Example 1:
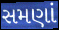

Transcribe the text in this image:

સમણાં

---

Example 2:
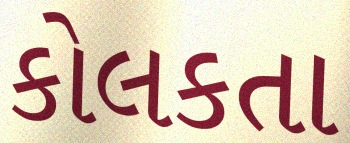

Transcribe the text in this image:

કોલકતા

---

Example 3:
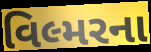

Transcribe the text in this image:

વિલ્મરના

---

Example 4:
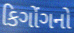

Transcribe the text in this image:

કિગોંગનો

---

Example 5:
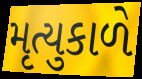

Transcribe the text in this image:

મૃત્યુકાળે